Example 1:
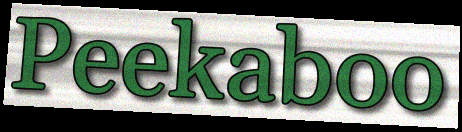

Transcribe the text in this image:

Peekaboo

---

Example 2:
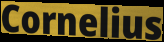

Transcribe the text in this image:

Cornelius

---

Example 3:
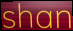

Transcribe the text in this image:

shan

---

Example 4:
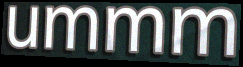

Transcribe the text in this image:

ummm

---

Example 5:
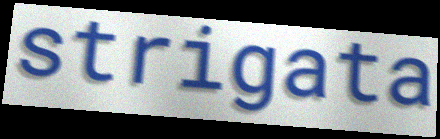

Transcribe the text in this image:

strigata